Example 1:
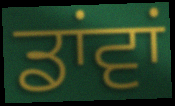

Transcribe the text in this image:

ਡਾਂਵਾਂ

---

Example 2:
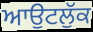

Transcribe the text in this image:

ਆਉਟਲੁੱਕ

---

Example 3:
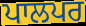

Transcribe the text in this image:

ਪਾਲਪਰ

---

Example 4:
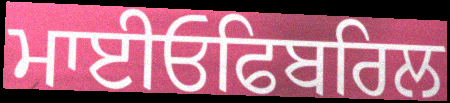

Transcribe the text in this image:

ਮਾਈਓਫਿਬਰਿਲ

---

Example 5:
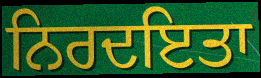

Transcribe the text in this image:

ਨਿਰਦਇਤਾ